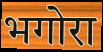
भगोरा